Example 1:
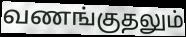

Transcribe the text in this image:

வணங்குதலும்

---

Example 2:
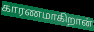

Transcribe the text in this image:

காரணமாகிறான்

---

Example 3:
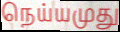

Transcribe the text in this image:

நெய்யமுது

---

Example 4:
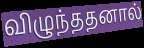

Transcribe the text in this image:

விழுந்ததனால்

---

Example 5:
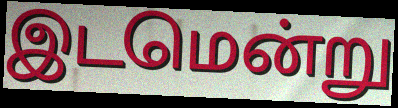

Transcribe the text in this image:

இடமென்று